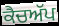
ਕੈਚਅੱਪ